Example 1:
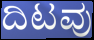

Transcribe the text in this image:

ದಿಟವು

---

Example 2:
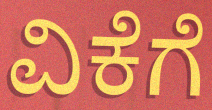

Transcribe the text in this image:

ವಿಕೆಗೆ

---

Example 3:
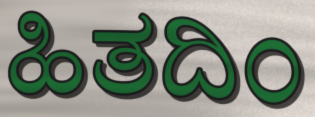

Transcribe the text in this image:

ಹಿತದಿಂ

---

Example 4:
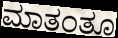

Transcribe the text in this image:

ಮಾತಂತೂ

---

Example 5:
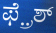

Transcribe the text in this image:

ಫ಼್ರೆಶ್